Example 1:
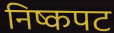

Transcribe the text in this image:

निष्कपट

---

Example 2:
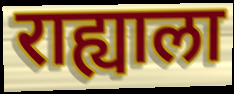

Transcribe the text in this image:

राह्याला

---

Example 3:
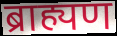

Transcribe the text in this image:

ब्राह्यण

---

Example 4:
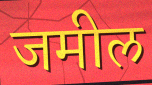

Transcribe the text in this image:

जमील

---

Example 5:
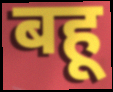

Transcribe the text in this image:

बहू